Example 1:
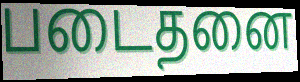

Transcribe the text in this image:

படைதனை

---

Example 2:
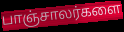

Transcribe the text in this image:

பாஞ்சாலர்களை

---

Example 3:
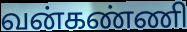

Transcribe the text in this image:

வன்கண்ணி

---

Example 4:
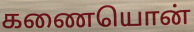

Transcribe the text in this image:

கணையொன்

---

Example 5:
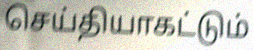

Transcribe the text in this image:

செய்தியாகட்டும்